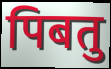
पिबतु